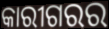
କାରୀଗରର